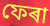
ফেৰা